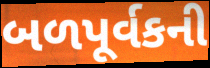
બળપૂર્વકની